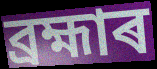
ব্ৰহ্মাৰ